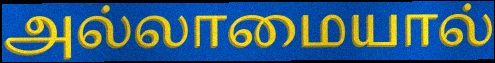
அல்லாமையால்